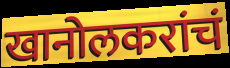
खानोलकरांचं